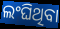
ଲଂଘିଥିବା